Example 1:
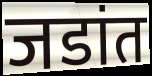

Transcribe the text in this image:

जडांत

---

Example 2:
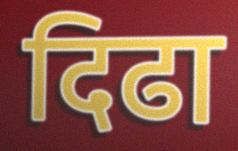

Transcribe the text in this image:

दिढा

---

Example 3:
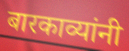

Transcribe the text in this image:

बारकाव्यांनी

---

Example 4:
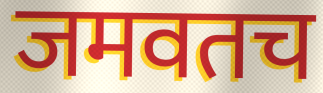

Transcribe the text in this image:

जमवतच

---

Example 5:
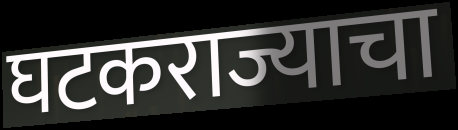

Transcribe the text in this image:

घटकराज्याचा